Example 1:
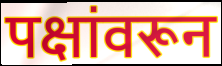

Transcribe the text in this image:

पक्षांवरून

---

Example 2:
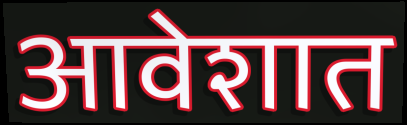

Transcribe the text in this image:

आवेशात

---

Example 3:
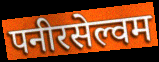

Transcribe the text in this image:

पनीरसेल्वम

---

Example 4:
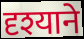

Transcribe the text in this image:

दृश्याने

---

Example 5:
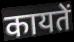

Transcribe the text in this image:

कायतें